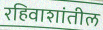
रहिवाशांतील